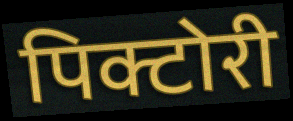
पिक्टोरी